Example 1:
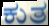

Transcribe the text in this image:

ಕುತ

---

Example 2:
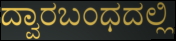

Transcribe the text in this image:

ದ್ವಾರಬಂಧದಲ್ಲಿ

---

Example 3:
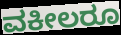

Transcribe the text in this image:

ವಕೀಲರೂ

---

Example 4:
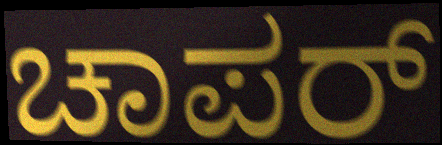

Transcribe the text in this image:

ಚಾಪರ್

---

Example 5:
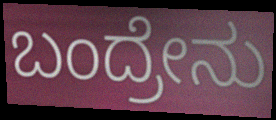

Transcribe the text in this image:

ಬಂದ್ರೇನು